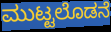
ಮುಟ್ಟಲೊಡನೆ